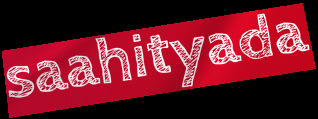
saahityada